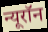
न्यूरॉन